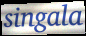
singala